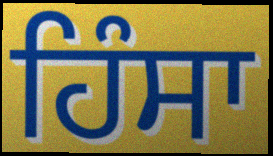
ਹਿੰਸਾ